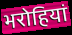
भरोहियां